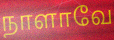
நாளாவே